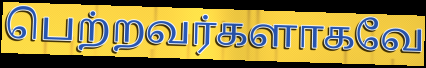
பெற்றவர்களாகவே